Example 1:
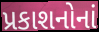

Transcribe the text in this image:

પ્રકાશનોનાં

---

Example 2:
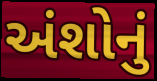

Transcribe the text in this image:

અંશોનું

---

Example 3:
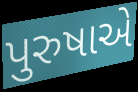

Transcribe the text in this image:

પુરુષાએ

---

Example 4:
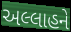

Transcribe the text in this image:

અલ્લાહને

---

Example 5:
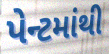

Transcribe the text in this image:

પેન્ટમાંથી